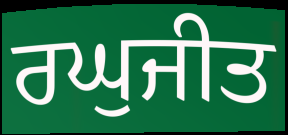
ਰਘੁਜੀਤ